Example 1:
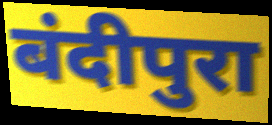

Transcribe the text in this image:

बंदीपुरा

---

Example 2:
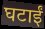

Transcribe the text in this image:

घटाईं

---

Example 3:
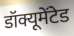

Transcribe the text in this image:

डॉक्यूमेंटेड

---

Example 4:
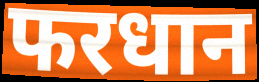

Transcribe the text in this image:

फरधान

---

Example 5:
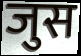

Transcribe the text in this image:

जुस